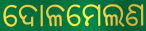
ଦୋଳମେଲଣ